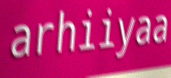
arhiiyaa